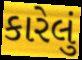
કારેલું